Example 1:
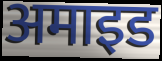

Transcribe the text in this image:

अमाइड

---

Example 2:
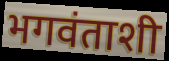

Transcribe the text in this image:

भगवंताशी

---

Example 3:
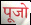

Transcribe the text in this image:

पूजो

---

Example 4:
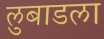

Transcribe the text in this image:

लुबाडला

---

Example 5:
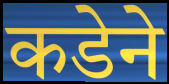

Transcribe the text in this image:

कडेने